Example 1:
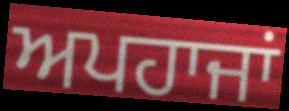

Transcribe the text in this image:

ਅਪਹਾਜਾਂ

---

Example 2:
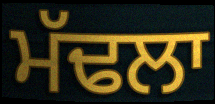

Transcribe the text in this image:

ਮੱਢਲਾ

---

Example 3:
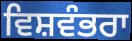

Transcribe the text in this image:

ਵਿਸ਼ਵੰਭਰਾ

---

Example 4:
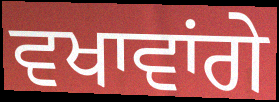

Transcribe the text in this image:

ਵਖਾਵਾਂਗੇ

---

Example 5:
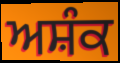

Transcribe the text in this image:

ਅਸ਼ੰਕ